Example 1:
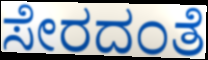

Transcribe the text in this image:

ಸೇರದಂತೆ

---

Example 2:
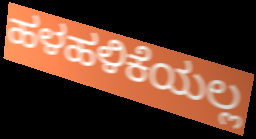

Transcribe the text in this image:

ಹಳಹಳಿಕೆಯಲ್ಲ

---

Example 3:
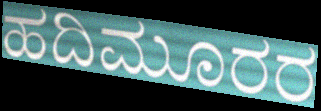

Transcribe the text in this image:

ಹದಿಮೂರರ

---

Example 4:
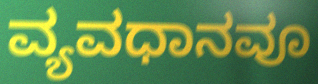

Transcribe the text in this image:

ವ್ಯವಧಾನವೂ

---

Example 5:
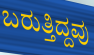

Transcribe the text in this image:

ಬರುತ್ತಿದ್ದವು